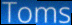
Toms